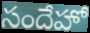
సందేహో